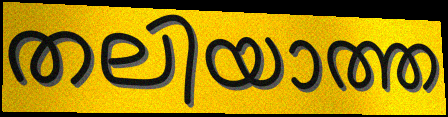
തലിയാത്ത